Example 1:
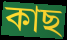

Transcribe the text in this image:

কাছ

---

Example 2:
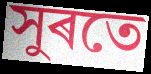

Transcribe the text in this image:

সুৰতে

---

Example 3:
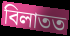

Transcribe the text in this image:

বিলাতত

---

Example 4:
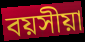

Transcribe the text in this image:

বয়সীয়া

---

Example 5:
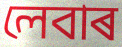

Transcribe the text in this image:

লেবাৰ